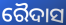
ରୈଦାସ